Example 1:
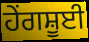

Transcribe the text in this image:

ਹੇਂਗਸ਼ੂਈ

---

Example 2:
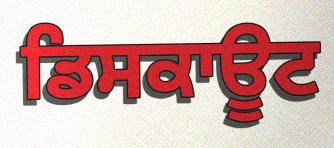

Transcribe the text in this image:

ਡਿਸਕਾਊਟ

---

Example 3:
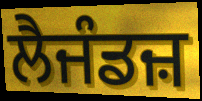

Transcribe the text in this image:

ਲੈਜੰਡਜ਼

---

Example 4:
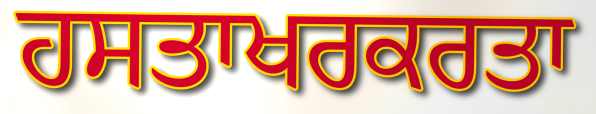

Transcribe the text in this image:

ਹਸਤਾਖਰਕਰਤਾ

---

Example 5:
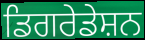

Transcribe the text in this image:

ਡਿਗਰੇਡੇਸ਼ਨ